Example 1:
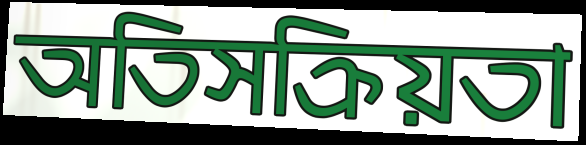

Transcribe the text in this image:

অতিসক্রিয়তা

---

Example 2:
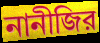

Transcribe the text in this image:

নানীজির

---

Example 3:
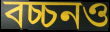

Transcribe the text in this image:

বচ্চনও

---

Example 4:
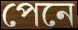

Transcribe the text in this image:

পেনে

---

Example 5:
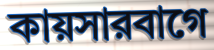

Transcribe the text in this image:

কায়সারবাগে